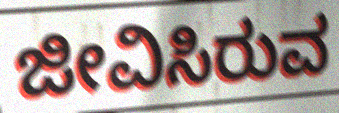
ಜೀವಿಸಿರುವ